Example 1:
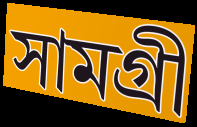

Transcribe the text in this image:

সামগ্ৰী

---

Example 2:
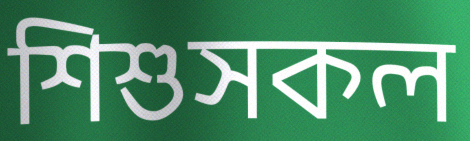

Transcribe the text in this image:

শিশুসকল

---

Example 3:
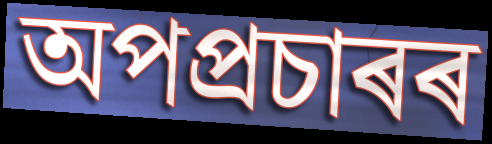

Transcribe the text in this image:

অপপ্ৰচাৰৰ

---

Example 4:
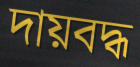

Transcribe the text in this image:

দায়বদ্ধ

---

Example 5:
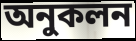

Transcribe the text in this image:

অনুকলন